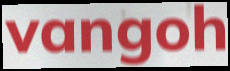
vangoh